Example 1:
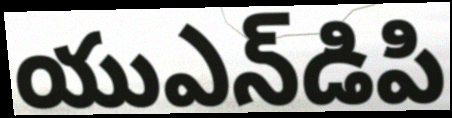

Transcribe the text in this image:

యుఎన్‌డిపి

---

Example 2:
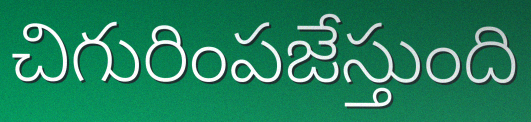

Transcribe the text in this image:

చిగురింపజేస్తుంది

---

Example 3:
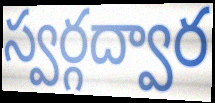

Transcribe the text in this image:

స్వర్గద్వార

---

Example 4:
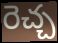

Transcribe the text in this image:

రెచ్చ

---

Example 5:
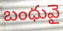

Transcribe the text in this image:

బంధువై